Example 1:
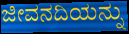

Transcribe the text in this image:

ಜೀವನದಿಯನ್ನು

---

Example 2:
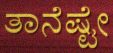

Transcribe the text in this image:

ತಾನೆಷ್ಟೇ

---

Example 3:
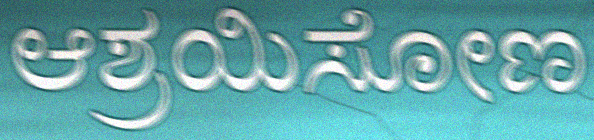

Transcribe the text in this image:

ಆಶ್ರಯಿಸೋಣ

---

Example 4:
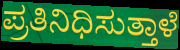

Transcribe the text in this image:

ಪ್ರತಿನಿಧಿಸುತ್ತಾಳೆ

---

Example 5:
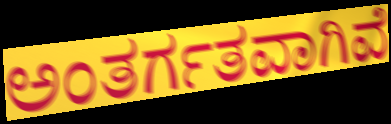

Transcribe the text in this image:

ಅಂತರ್ಗತವಾಗಿವೆ